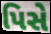
પિસે